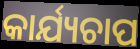
କାର୍ଯ୍ୟଚାପ